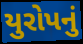
યુરોપનું